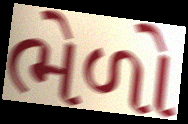
ભેળો